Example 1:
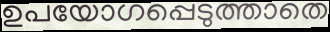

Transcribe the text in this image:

ഉപയോഗപ്പെടുത്താതെ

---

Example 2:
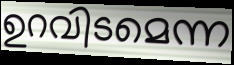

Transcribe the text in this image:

ഉറവിടമെന്ന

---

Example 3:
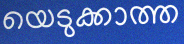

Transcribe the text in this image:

യെടുക്കാത്ത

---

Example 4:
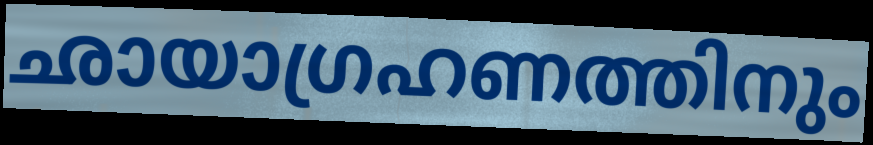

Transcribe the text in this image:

ഛായാഗ്രഹണത്തിനും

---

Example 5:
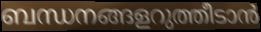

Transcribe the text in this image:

ബന്ധനങ്ങളറുത്തീടാൻ